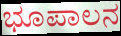
ಭೂಪಾಲನ